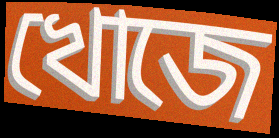
খোজে